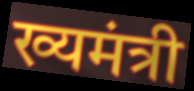
ख्यमंत्री